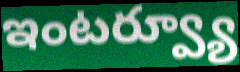
ఇంటర్వ్యూ